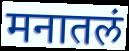
मनातलं